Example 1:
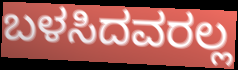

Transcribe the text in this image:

ಬಳಸಿದವರಲ್ಲ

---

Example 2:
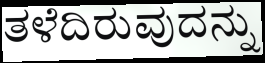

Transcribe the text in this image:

ತಳೆದಿರುವುದನ್ನು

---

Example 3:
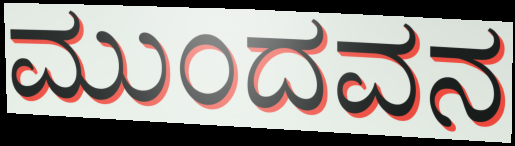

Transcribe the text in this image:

ಮುಂದವನ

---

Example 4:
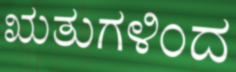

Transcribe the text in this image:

ಋತುಗಳಿಂದ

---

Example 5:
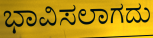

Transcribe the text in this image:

ಭಾವಿಸಲಾಗದು